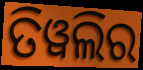
ତିୱଲିର